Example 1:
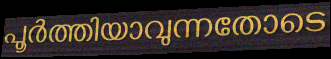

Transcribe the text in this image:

പൂർത്തിയാവുന്നതോടെ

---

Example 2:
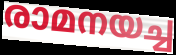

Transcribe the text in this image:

രാമനയച്ച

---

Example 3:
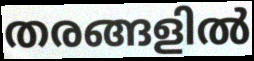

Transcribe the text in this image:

തരങ്ങളിൽ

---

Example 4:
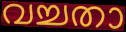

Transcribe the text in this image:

വച്ചതാ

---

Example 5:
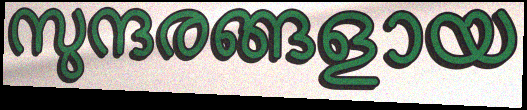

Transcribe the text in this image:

സുന്ദരങ്ങളായ